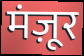
मंज़ूर